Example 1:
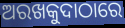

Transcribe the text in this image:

ଅରଖକୁଦାଠାରେ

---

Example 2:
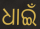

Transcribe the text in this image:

ଧାଇଁ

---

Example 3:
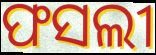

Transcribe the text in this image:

ଫସଲୀ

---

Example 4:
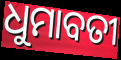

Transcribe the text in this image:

ଧୁମାବତୀ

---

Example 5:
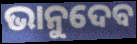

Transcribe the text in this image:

ଭାନୁଦେବ